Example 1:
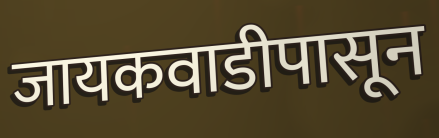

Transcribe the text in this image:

जायकवाडीपासून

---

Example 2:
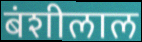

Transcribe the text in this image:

बंशीलाल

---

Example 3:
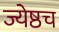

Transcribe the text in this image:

ज्येष्ठच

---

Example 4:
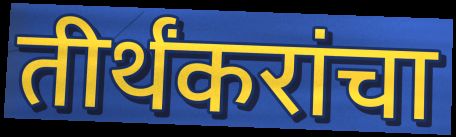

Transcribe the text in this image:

तीर्थंकरांचा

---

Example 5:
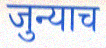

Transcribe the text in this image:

जुन्याच